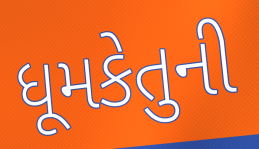
ધૂમકેતુની